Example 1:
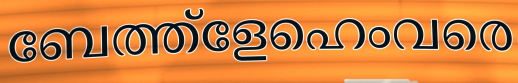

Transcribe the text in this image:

ബേത്ത്ളേഹെംവരെ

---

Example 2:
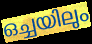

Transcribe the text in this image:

ഒച്ചയിലും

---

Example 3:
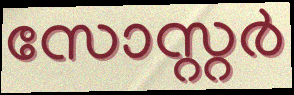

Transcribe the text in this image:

സോസ്റ്റർ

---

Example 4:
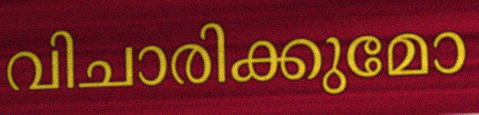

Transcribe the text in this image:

വിചാരിക്കുമോ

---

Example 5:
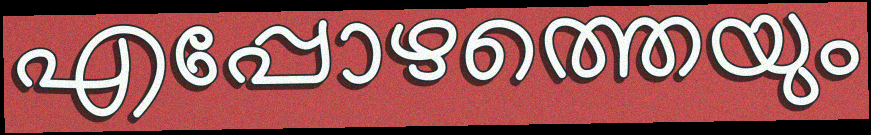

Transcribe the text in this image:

എപ്പോഴത്തെയും